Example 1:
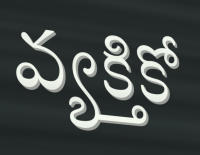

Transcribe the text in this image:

వ్యక్తికో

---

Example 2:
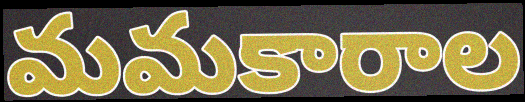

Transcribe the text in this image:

మమకారాల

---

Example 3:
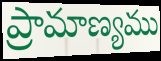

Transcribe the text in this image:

ప్రామాణ్యము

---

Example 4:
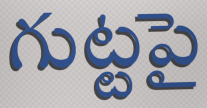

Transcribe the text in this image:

గుట్టపై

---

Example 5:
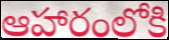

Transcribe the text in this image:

ఆహారంలోకి